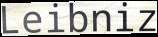
Leibniz